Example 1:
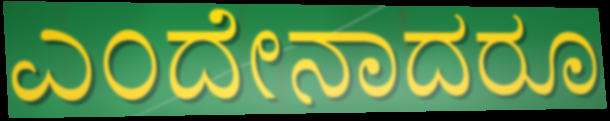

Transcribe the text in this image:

ಎಂದೇನಾದರೂ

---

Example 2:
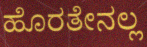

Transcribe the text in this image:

ಹೊರತೇನಲ್ಲ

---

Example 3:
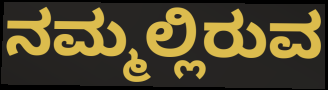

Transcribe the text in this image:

ನಮ್ಮಲ್ಲಿರುವ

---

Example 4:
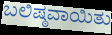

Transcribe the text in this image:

ಬಲಿಷ್ಠವಾಯಿತು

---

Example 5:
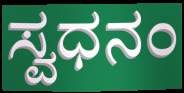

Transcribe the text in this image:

ಸ್ವಧನಂ